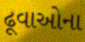
ઢૂવાઓના